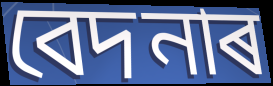
বেদনাৰ